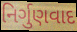
નિર્ગુણવાદ